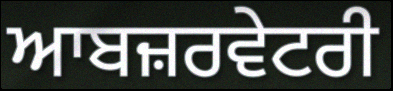
ਆਬਜ਼ਰਵੇਟਰੀ